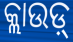
କ୍ଲାଉଡ଼୍